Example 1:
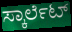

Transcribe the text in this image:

ಸ್ಕಾರ್ಲೆಟ್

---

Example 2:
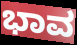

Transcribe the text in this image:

ಭಾವ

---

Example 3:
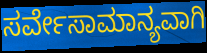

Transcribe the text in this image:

ಸರ್ವೇಸಾಮಾನ್ಯವಾಗಿ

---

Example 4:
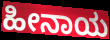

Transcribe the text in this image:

ಹೀನಾಯ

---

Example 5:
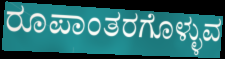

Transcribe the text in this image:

ರೂಪಾಂತರಗೊಳ್ಳುವ